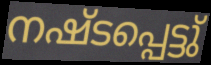
നഷ്ടപ്പെട്ടു്